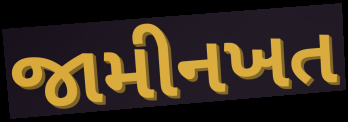
જામીનખત